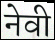
नेवी